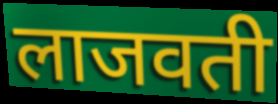
लाजवती